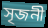
সৃজনী